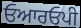
ਓਆਰਓਪੀ